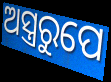
ଅସ୍ତ୍ରରୁପେ